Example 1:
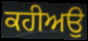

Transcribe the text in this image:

ਕਹੀਅਉ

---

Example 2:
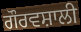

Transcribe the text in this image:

ਗੌਰਵਸ਼ਾਲੀ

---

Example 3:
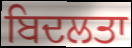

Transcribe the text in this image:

ਬਿਦਲਤਾ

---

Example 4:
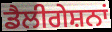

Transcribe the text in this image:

ਡੈਲੀਗੇਸ਼ਨਾਂ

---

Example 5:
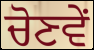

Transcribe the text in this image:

ਚੋਣਵੇਂ